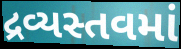
દ્રવ્યસ્તવમાં